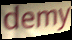
demy